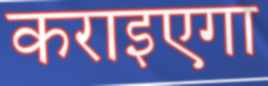
कराइएगा